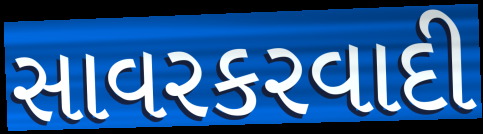
સાવરકરવાદી